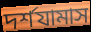
দর্শযামাস